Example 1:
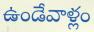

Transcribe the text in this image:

ఉండేవాళ్లం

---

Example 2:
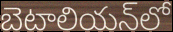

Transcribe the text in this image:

బెటాలియన్‌లో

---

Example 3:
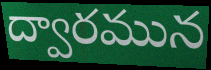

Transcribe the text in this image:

ద్వారమున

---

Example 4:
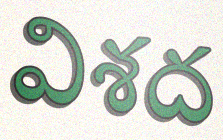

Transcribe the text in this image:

విశద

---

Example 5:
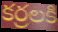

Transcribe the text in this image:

కర్రలకి